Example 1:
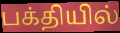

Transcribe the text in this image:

பக்தியில்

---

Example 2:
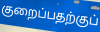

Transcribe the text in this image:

குறைப்பதற்குப்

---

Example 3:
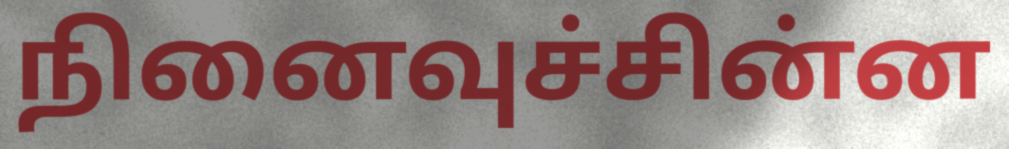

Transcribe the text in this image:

நினைவுச்சின்ன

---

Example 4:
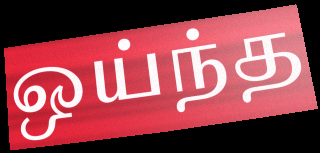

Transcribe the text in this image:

ஒய்ந்த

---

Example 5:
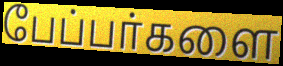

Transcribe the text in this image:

பேப்பர்களை